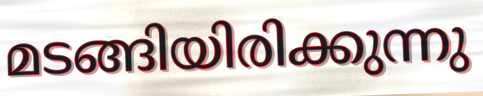
മടങ്ങിയിരിക്കുന്നു